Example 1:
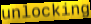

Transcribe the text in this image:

unlocking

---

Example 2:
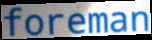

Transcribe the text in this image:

foreman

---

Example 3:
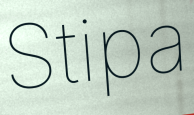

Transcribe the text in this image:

Stipa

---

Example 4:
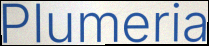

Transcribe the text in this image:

Plumeria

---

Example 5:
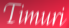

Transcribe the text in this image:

Timuri